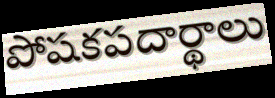
పోషకపదార్థాలు